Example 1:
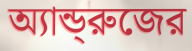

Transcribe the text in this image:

অ্যান্ড্‌রুজের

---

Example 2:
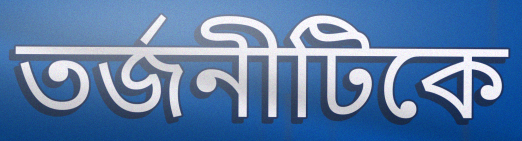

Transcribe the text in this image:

তর্জনীটিকে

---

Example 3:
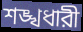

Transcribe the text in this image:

শঙ্খধারী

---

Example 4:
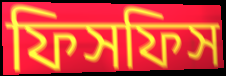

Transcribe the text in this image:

ফিসফিস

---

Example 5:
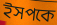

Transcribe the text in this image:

ইসপকে